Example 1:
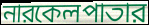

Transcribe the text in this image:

নারকেলপাতার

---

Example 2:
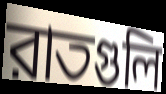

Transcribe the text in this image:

রাতগুলি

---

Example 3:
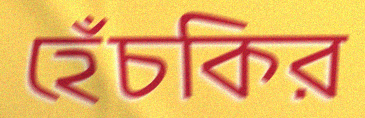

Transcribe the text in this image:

হেঁচকির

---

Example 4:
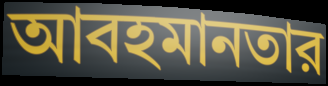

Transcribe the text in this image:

আবহমানতার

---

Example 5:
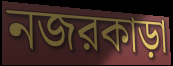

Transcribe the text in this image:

নজরকাড়া